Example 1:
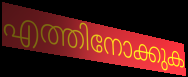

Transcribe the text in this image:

എത്തിനോക്കുക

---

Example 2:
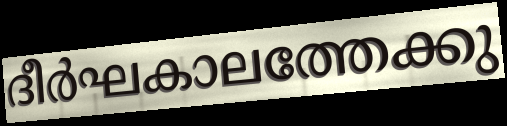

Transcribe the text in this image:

ദീർഘകാലത്തേക്കു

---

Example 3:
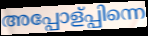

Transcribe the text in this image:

അപ്പോള്പ്പിന്നെ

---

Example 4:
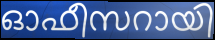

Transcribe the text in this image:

ഓഫീസറായി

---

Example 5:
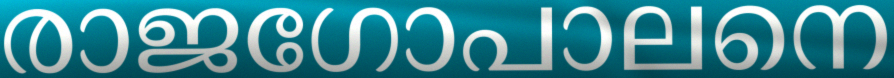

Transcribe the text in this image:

രാജഗോപാലനെ